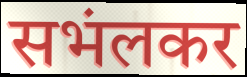
सभंलकर